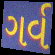
ગર્વ